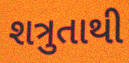
શત્રુતાથી